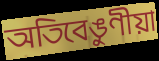
অতিবেঙুণীয়া